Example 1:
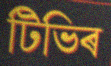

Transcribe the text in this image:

টিভিৰ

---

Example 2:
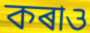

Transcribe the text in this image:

কৰাও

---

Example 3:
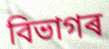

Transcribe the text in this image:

বিভাগৰ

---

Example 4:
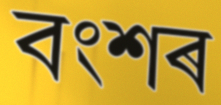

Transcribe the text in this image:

বংশৰ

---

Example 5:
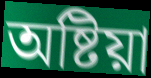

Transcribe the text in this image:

অষ্টিয়া